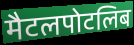
मैटलपोटलिब